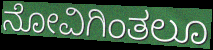
ನೋವಿಗಿಂತಲೂ